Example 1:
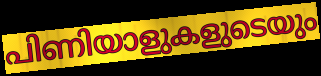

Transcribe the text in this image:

പിണിയാളുകളുടെയും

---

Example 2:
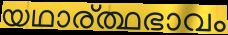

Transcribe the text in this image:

യഥാര്ത്ഥഭാവം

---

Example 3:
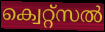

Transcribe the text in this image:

ക്വെറ്റ്സൽ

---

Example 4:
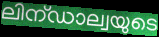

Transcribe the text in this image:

ലിന്ഡാല്വയുടെ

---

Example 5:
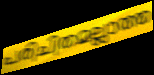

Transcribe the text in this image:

പരിചിതമല്ലാത്ത